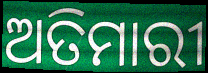
ଅତିମାରୀ